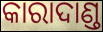
କାରାଦାଣ୍ଡ